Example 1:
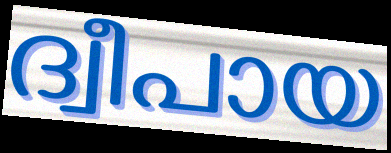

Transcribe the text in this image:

ദ്വീപായ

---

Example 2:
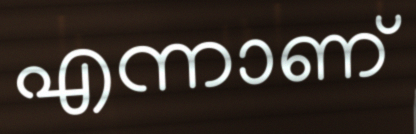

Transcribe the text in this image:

എന്നാണ്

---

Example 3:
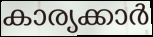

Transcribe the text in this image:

കാര്യക്കാർ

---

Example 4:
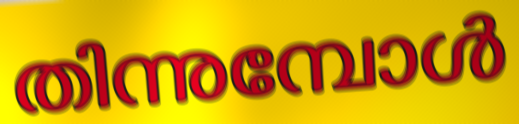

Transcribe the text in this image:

തിന്നുമ്പോൾ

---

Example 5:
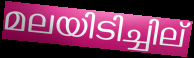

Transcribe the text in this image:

മലയിടിച്ചില്